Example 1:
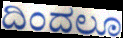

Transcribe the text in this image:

ದಿಂದಲೂ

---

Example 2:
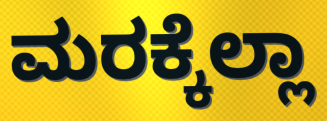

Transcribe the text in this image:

ಮರಕ್ಕೆಲ್ಲಾ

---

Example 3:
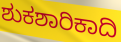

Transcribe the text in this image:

ಶುಕಶಾರಿಕಾದಿ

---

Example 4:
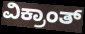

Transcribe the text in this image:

ವಿಕ್ರಾಂತ್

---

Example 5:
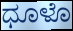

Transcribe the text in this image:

ಧೂಳೊ